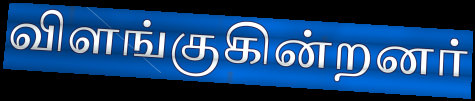
விளங்குகின்றனர்